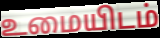
உமையிடம்